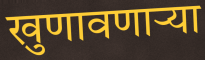
खुणावणाऱ्या